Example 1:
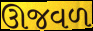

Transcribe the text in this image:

ઊજવળ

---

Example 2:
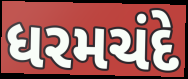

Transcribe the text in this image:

ધરમચંદે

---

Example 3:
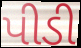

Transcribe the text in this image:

પીડી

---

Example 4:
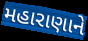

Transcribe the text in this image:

મહારાણાને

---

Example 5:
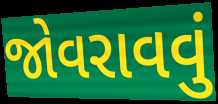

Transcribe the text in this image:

જોવરાવવું